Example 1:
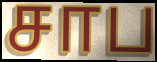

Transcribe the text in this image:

சாப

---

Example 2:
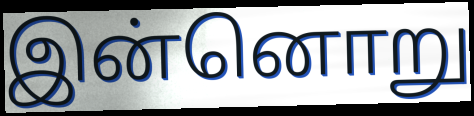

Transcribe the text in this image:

இன்னொறு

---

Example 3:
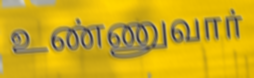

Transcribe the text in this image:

உண்ணுவார்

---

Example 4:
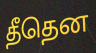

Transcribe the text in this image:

தீதென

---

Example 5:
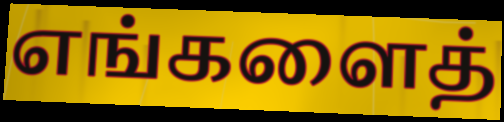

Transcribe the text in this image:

எங்களைத்